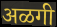
अळगी